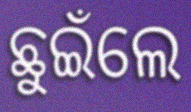
ଛୁଇଁଲେ